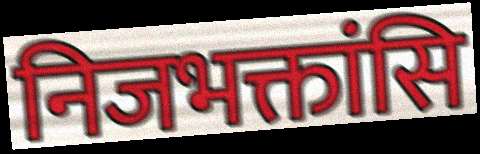
निजभक्तांसि